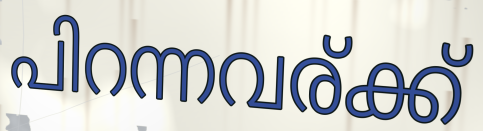
പിറന്നവര്ക്ക്